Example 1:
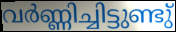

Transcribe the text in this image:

വർണ്ണിച്ചിട്ടുണ്ടു്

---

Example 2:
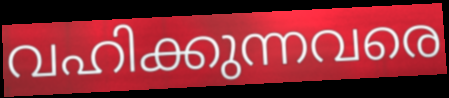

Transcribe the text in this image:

വഹിക്കുന്നവരെ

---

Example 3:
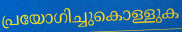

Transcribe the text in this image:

പ്രയോഗിച്ചുകൊള്ളുക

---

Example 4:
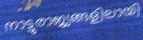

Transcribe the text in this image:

നാട്ടുരാജ്യങ്ങളിലായി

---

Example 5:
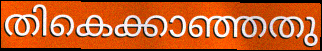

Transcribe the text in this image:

തികെക്കാഞ്ഞതു